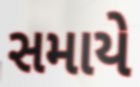
સમાયે